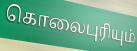
கொலைபுரியும்